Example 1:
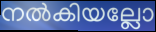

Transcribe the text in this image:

നൽകിയല്ലോ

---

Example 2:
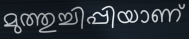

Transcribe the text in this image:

മുത്തുച്ചിപ്പിയാണ്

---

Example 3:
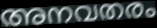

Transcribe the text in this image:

അനവതരം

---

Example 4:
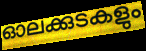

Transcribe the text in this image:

ഓലക്കുടകളും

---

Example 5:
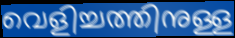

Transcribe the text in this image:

വെളിച്ചത്തിനുള്ള